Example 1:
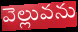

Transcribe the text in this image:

వెల్లువను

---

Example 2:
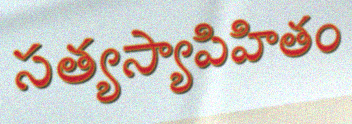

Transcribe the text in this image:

సత్యస్యాపిహితం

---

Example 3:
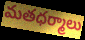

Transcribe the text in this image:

మతధర్మాలు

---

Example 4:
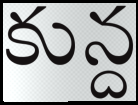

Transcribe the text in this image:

కున్ద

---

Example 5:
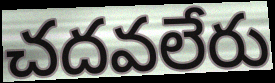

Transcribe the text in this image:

చదవలేరు